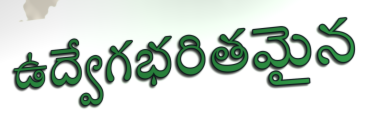
ఉద్వేగభరితమైన